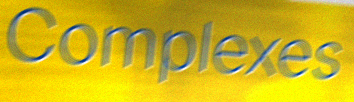
Complexes